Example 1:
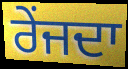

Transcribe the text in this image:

ਰੇਂਜਦਾ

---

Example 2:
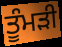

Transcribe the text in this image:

ਤੂੰਮੜੀ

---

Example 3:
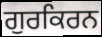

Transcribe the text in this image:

ਗੁਰਕਿਰਨ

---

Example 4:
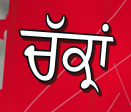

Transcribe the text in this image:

ਚੱਕ੍ਰਾਂ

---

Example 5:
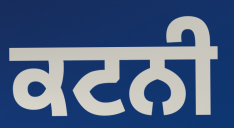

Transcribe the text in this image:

ਕਟਨੀ